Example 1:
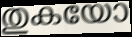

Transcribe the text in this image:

തുകയോ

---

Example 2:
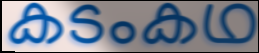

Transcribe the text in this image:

കടംകഥ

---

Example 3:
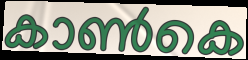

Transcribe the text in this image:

കാൺകെ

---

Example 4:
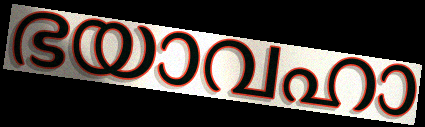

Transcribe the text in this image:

ഭയാവഹാ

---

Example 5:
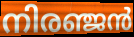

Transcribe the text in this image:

നിരഞ്ജൻ